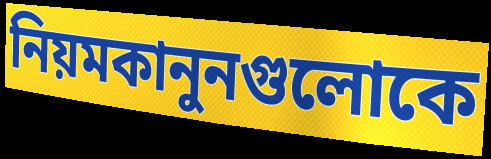
নিয়মকানুনগুলোকে